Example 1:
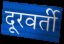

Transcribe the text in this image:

दूरवर्ती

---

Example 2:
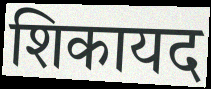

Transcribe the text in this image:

शिकायद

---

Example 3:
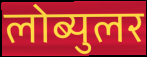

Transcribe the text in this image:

लोब्युलर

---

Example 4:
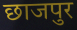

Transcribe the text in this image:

छाजपुर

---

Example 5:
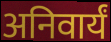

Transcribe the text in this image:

अनिवार्यं